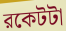
রকেটটা